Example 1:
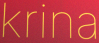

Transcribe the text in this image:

krina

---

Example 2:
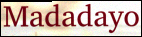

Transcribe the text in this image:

Madadayo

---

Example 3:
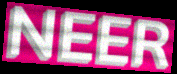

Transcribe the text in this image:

NEER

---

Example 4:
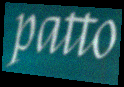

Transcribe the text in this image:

patto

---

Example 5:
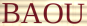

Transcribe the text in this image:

BAOU